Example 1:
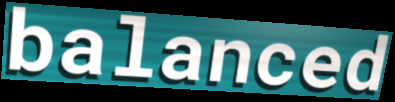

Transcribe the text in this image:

balanced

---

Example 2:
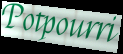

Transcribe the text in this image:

Potpourri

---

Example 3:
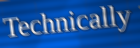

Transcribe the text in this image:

Technically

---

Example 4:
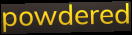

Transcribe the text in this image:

powdered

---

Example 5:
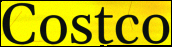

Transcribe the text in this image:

Costco